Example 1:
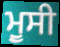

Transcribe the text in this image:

ਮੂਸੀ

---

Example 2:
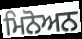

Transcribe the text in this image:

ਮਿਨੋਅਨ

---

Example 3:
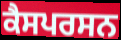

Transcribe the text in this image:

ਕੈਸਪਰਸਨ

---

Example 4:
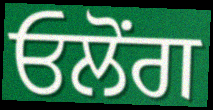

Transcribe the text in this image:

ਓਲੋਂਗ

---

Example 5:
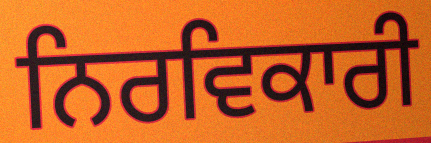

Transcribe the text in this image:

ਨਿਰਵਿਕਾਰੀ